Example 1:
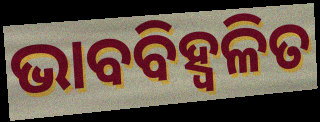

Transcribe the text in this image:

ଭାବବିହ୍ବଳିତ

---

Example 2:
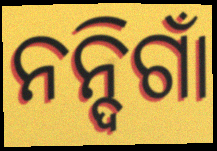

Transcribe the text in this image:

ନନ୍ଦିଗାଁ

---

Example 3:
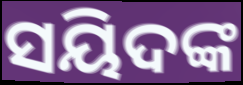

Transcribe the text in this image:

ସୟିଦଙ୍କ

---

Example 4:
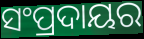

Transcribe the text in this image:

ସଂପ୍ରଦାୟର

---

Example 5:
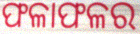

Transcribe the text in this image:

ଫଳାଫଳର